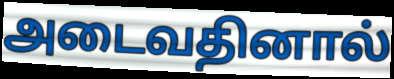
அடைவதினால்